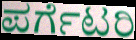
ಪರ್ಗೆಟರಿ